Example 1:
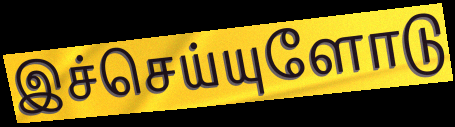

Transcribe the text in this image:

இச்செய்யுளோடு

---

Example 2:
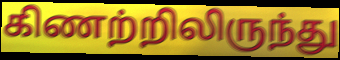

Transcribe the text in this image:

கிணற்றிலிருந்து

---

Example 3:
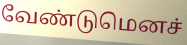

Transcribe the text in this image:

வேண்டுமெனச்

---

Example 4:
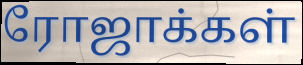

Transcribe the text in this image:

ரோஜாக்கள்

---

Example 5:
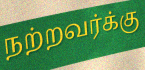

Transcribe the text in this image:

நற்றவர்க்கு